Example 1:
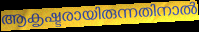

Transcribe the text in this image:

ആകൃഷ്ടരായിരുന്നതിനാൽ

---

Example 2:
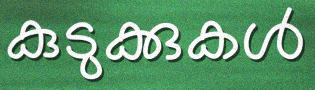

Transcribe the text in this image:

കുടുക്കുകൾ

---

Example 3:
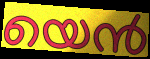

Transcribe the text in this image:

യെൻ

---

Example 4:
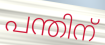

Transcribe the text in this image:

പന്തിന്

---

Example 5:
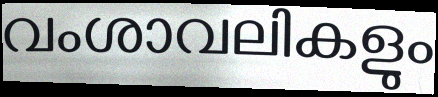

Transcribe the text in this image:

വംശാവലികളും